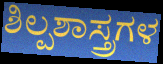
ಶಿಲ್ಪಶಾಸ್ತ್ರಗಳ